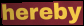
hereby